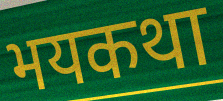
भयकथा